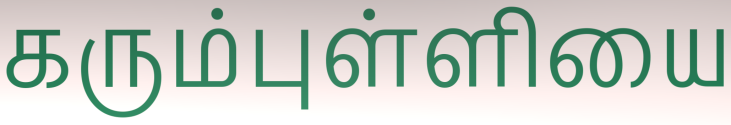
கரும்புள்ளியை